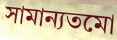
সামান্যতমো